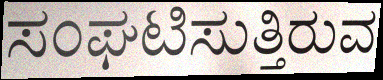
ಸಂಘಟಿಸುತ್ತಿರುವ